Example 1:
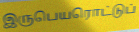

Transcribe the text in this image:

இருபெயரொட்டுப்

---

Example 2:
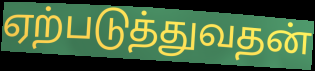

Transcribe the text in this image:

ஏற்படுத்துவதன்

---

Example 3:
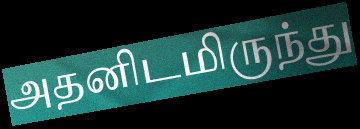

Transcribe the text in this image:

அதனிடமிருந்து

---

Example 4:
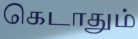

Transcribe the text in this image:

கெடாதும்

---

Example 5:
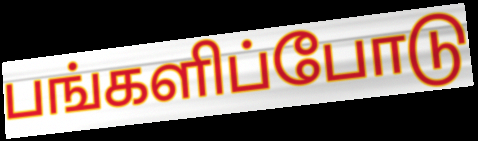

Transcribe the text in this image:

பங்களிப்போடு